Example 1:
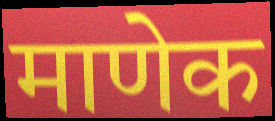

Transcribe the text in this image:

माणेक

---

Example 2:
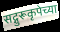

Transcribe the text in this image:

सद्गुरूकृपेच्या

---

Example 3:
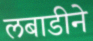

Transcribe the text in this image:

लबाडीने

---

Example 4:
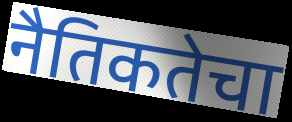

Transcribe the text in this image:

नैतिकतेचा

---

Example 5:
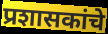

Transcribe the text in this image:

प्रशासकांचे